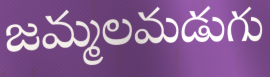
జమ్మలమడుగు